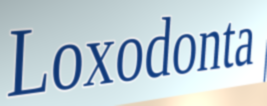
Loxodonta